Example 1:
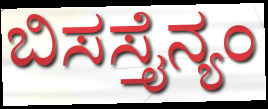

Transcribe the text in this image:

ಬಿಸಸ್ತೈನ್ಯಂ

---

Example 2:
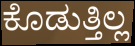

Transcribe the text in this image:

ಕೊಡುತ್ತಿಲ್ಲ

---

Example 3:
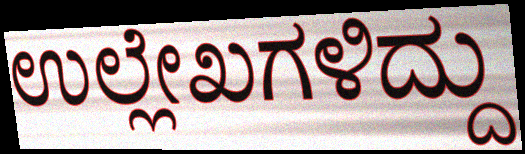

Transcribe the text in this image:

ಉಲ್ಲೇಖಗಳಿದ್ದು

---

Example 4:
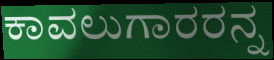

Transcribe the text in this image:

ಕಾವಲುಗಾರರನ್ನ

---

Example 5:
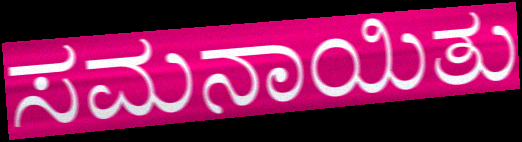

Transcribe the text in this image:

ಸಮನಾಯಿತು